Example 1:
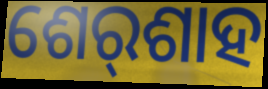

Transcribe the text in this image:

ଶେର୍‌ଶାହ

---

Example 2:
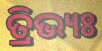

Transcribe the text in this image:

ତ୍ରିଭ୍ୟଃ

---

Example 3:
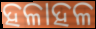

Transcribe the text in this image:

ହଳାହଳ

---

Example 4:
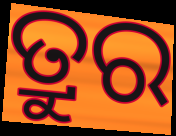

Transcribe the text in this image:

ତ୍ରୁର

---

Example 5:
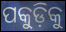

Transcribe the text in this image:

ପକୁଡ଼ିକୁ